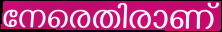
നേരെതിരാണ്